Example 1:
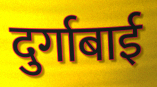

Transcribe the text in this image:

दुर्गाबाई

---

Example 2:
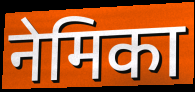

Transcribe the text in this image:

नेमिका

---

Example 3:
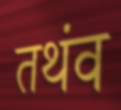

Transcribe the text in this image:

तथंव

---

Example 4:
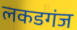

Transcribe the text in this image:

लकडगंज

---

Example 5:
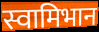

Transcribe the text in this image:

स्वामिभान